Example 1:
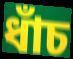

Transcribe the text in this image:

ধাঁচ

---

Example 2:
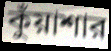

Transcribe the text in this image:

কুঁয়াশার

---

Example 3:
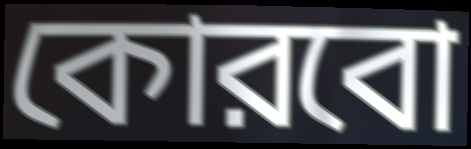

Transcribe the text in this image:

কোরবো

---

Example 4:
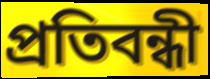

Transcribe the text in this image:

প্রতিবন্ধী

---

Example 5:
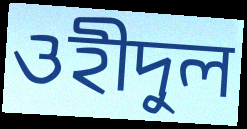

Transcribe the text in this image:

ওহীদুল